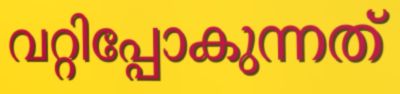
വറ്റിപ്പോകുന്നത്